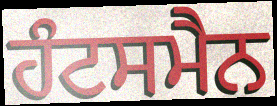
ਹੰਟਸਮੈਨ